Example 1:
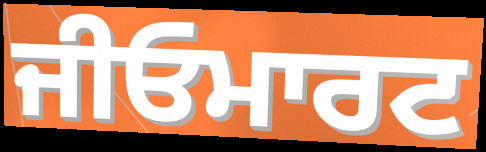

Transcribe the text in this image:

ਜੀਓਮਾਰਟ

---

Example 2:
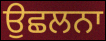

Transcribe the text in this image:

ਉਛਲਨਾ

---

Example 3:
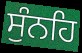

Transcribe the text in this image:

ਸੁੰਨਹਿ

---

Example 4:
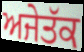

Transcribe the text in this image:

ਅਜੇਤੱਕ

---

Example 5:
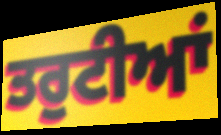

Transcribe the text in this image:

ਤਰੁਟੀਆਂ